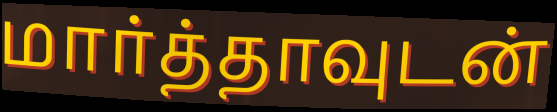
மார்த்தாவுடன்